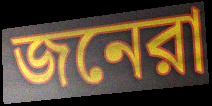
জনেরা